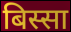
बिस्सा